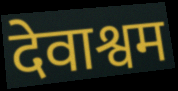
देवाश्वम